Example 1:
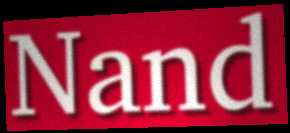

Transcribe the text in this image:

Nand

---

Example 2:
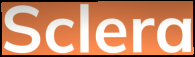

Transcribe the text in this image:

Sclera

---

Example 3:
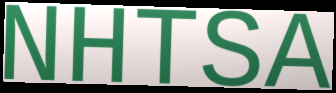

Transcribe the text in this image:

NHTSA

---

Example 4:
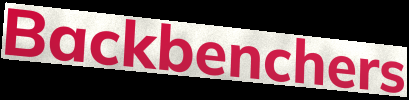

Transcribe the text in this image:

Backbenchers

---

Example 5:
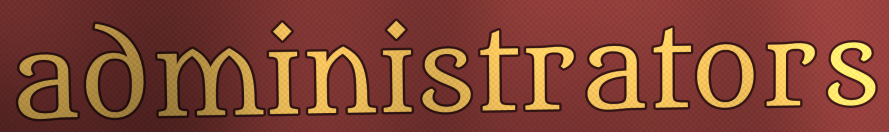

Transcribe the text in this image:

administrators